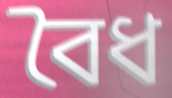
বৈধ